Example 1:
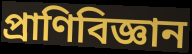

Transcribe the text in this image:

প্রাণিবিজ্ঞান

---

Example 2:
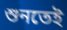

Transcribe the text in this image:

শুনতেই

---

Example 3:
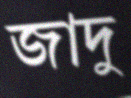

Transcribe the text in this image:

জাদু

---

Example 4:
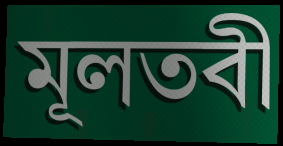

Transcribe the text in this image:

মূলতবী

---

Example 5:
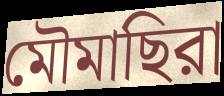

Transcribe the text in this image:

মৌমাছিরা